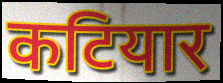
कटियार